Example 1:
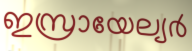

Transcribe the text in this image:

ഇസ്രായേല്യർ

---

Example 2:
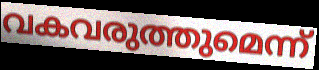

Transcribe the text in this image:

വകവരുത്തുമെന്ന്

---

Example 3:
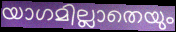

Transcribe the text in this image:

യാഗമില്ലാതെയും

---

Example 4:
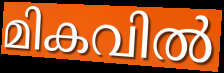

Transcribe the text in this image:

മികവിൽ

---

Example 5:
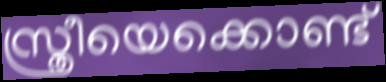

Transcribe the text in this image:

സ്ത്രീയെക്കൊണ്ട്